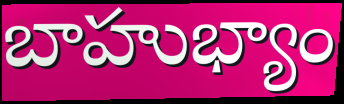
బాహుభ్యాం